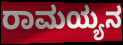
ರಾಮಯ್ಯನ